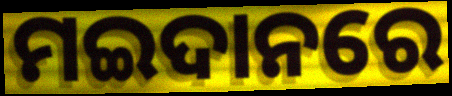
ମଇଦାନରେ